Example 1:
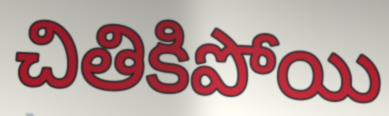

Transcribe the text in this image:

చితికిపోయి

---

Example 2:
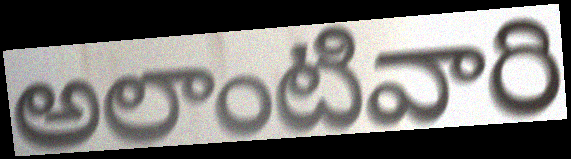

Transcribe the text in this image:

అలాంటివారి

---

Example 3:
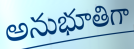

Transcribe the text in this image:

అనుభూతిగా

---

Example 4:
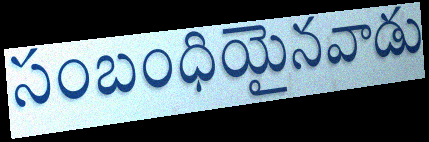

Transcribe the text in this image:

సంబంధియైనవాడు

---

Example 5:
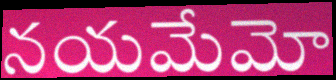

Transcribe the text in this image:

నయమేమో